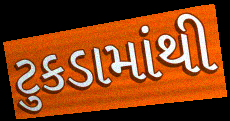
ટુકડામાંથી